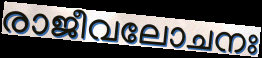
രാജീവലോചനഃ